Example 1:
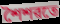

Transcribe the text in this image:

শৈশৱতে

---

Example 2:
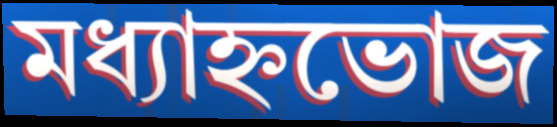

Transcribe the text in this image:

মধ্যাহ্নভোজ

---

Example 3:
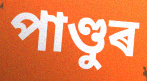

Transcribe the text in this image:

পাণ্ডুৰ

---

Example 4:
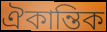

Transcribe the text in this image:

ঐকান্তিক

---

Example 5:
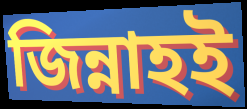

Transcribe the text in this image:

জিন্নাহই